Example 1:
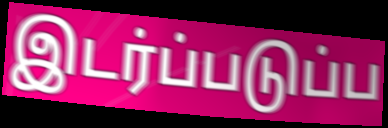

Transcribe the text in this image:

இடர்ப்படுப்ப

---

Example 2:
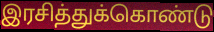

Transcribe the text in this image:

இரசித்துக்கொண்டு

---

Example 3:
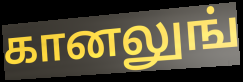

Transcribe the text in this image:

கானலுங்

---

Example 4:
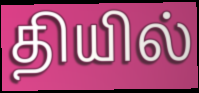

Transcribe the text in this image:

தியில்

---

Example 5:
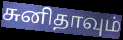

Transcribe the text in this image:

சுனிதாவும்